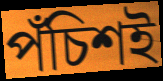
পঁচিশই